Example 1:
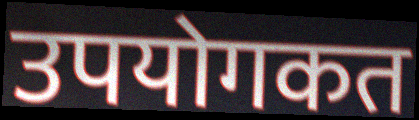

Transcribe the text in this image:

उपयोगकत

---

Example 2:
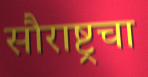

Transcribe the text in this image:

सौराष्ट्रचा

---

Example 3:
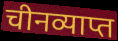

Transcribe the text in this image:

चीनव्याप्त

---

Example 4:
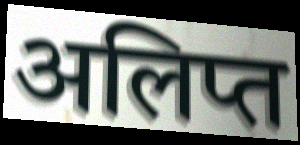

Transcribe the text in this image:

अलिप्त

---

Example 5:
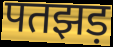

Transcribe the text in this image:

पतझड़